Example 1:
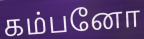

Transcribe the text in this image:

கம்பனோ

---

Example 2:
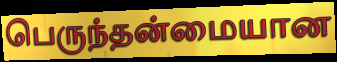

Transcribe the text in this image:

பெருந்தன்மையான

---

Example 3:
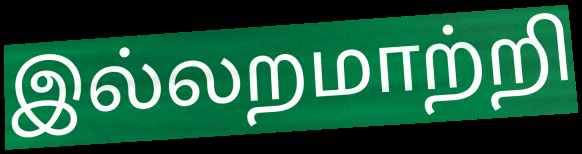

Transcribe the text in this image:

இல்லறமாற்றி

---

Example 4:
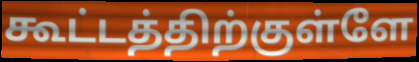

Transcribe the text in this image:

கூட்டத்திற்குள்ளே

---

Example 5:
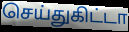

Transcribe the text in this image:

செய்துகிட்டா